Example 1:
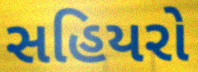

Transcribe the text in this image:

સહિયરો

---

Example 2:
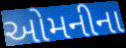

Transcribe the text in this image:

ઓમનીના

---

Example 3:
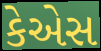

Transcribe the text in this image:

કેએસ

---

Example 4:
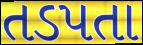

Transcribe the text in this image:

તડપતા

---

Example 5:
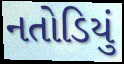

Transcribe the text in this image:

નતોડિયું